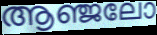
ആഞ്ജലോ